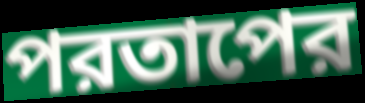
পরতাপের